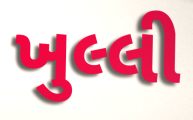
ખુલ્લી